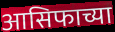
आसिफाच्या